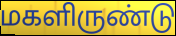
மகளிருண்டு